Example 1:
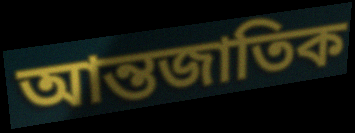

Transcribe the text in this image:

আন্তজাতিক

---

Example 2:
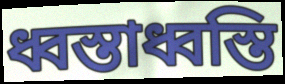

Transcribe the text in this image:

ধ্বস্তাধ্বস্তি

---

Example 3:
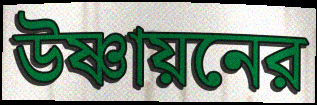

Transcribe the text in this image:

উষ্ণায়নের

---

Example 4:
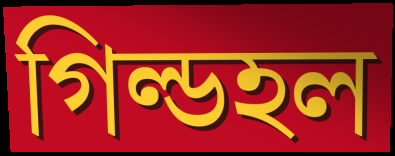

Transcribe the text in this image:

গিল্ডহল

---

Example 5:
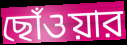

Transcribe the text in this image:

ছোঁওয়ার